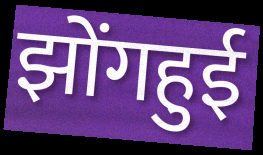
झोंगहुई